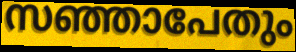
സഞ്ഞാപേതും